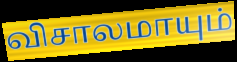
விசாலமாயும்